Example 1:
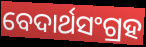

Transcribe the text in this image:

ବେଦାର୍ଥସଂଗ୍ରହ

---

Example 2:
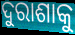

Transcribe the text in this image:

ଦୁରାଶାକୁ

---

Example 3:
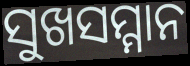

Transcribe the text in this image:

ସୁଖସମ୍ମାନ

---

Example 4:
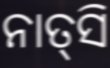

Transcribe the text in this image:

ନାତ୍‌ସି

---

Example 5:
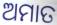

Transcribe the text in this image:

ଅମାତ